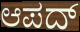
ಆಪದ್